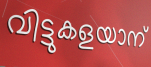
വിട്ടുകളയാന്